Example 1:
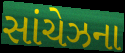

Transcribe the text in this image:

સાંચેઝના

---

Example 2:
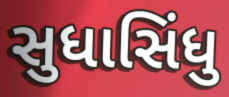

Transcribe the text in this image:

સુધાસિંધુ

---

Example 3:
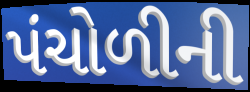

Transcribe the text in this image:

પંચોળીની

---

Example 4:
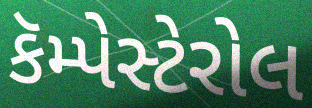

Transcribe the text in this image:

કૅમ્પેસ્ટેરોલ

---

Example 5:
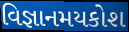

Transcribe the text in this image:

વિજ્ઞાનમયકોશ